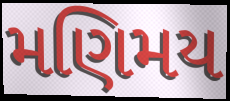
મણિમય